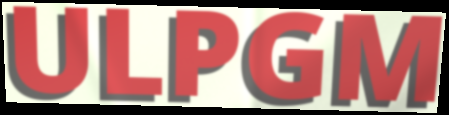
ULPGM